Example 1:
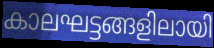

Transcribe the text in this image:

കാലഘട്ടങ്ങളിലായി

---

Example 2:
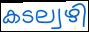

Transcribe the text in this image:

കടല്വഴി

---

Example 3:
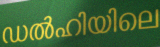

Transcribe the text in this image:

ഡൽഹിയിലെ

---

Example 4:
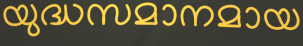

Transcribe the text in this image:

യുദ്ധസമാനമായ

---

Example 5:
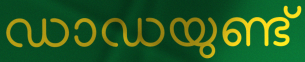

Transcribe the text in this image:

ഡാഡയുണ്ട്